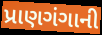
પ્રાણગંગાની